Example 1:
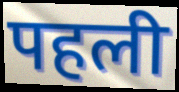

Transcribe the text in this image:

पहली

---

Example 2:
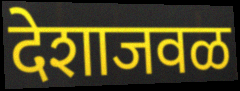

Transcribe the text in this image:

देशाजवळ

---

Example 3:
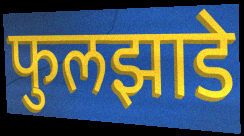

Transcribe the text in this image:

फुलझाडे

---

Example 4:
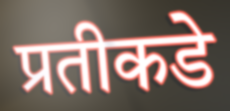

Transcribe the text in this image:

प्रतीकडे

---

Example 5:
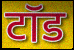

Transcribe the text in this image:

टॉड